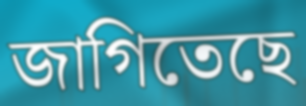
জাগিতেছে